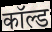
कॉल्ड